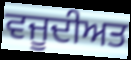
ਵਜੂਦੀਅਤ